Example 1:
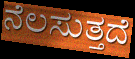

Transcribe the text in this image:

ನೆಲಸುತ್ತದೆ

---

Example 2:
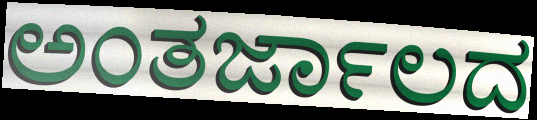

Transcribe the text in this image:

ಅಂತರ್ಜಾಲದ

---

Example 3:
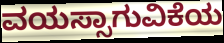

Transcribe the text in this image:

ವಯಸ್ಸಾಗುವಿಕೆಯ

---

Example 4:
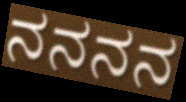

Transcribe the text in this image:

ನನನನ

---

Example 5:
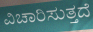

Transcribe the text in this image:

ವಿಚಾರಿಸುತ್ತದೆ